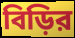
বিড়ির